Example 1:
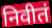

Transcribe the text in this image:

निवीतं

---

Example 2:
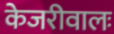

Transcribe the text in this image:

केजरीवालः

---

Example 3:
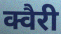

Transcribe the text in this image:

क्वैरी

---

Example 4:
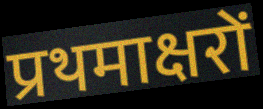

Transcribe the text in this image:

प्रथमाक्षरों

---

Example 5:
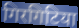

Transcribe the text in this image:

गिरगिटिया